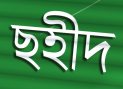
ছহীদ